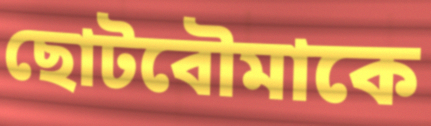
ছোটবৌমাকে